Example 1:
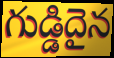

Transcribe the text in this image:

గుడ్డిదైన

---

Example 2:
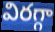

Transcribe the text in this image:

విరగ్గా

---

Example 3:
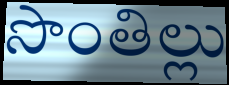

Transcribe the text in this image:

సొంతిల్లు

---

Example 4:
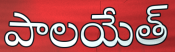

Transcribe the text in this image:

పాలయేత్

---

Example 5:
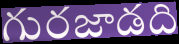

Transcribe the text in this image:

గురజాడది